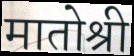
मातोश्री